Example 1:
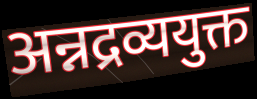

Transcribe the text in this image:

अन्नद्रव्ययुक्त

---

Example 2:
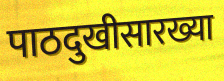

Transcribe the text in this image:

पाठदुखीसारख्या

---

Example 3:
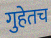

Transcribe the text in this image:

गुहेतच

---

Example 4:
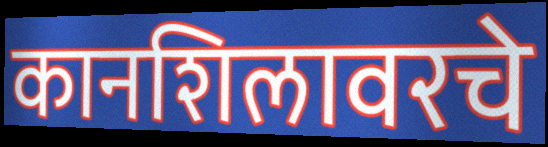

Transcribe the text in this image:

कानशिलावरचे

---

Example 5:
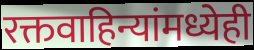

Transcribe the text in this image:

रक्तवाहिन्यांमध्येही